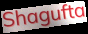
Shagufta